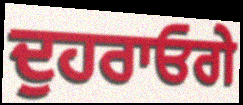
ਦੁਹਰਾਓਗੇ